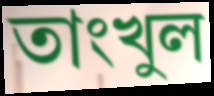
তাংখুল